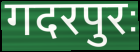
गदरपुरः